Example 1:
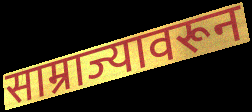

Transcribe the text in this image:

साम्राज्यावरून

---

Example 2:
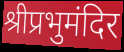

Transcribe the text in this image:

श्रीप्रभुमंदिर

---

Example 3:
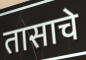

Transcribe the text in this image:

तासाचे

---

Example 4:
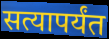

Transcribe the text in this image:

सत्यापर्यंत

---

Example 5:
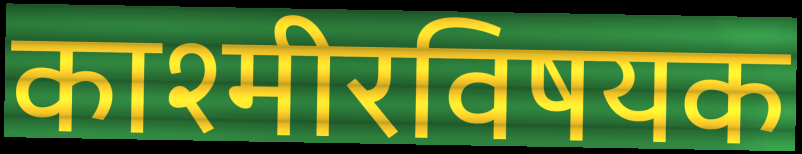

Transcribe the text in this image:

काश्मीरविषयक